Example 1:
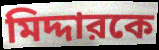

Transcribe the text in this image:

মিদ্দারকে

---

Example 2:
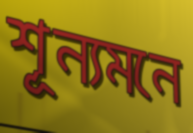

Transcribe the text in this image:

শূন্যমনে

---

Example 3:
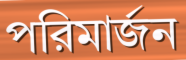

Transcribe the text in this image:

পরিমার্জন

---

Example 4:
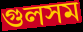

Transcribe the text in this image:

গুলসম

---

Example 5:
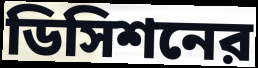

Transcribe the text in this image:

ডিসিশনের